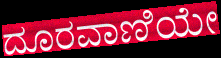
ದೂರವಾಣಿಯೇ